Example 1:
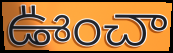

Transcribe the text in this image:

ఊంచా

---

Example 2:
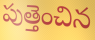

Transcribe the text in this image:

పుత్తెంచిన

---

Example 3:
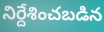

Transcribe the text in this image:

నిర్దేశించబడిన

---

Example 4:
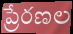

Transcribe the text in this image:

ప్రేరణల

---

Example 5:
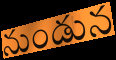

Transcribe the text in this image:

నుండున